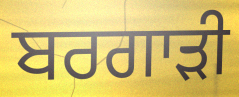
ਬਰਗਾੜੀ